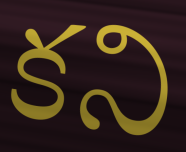
కని